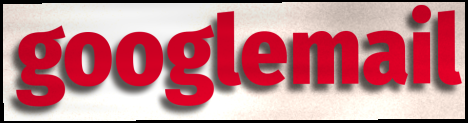
googlemail